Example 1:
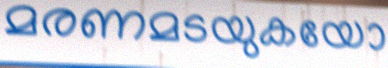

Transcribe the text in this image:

മരണമടയുകയോ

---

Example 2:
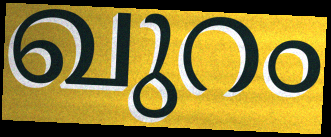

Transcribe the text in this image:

ഖുറം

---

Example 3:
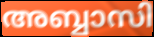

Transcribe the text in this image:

അബ്ബാസി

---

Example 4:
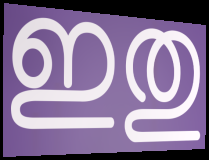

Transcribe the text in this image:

ഇതു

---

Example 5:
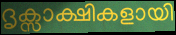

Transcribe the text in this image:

ദൃക്സാക്ഷികളായി